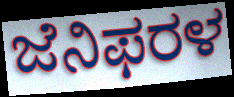
ಜೆನಿಫರಳ